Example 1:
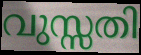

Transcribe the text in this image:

വുസ്സതി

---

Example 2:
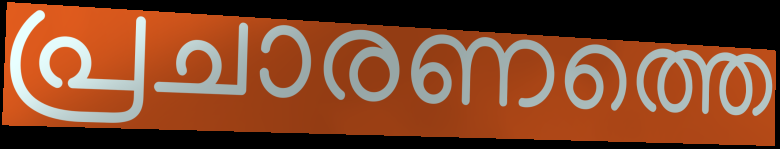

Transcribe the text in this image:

പ്രചാരണത്തെ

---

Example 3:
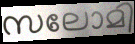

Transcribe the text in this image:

സലോമി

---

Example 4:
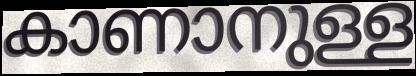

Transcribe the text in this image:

കാണാനുള്ള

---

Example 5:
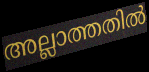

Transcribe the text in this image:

അല്ലാത്തതിൽ